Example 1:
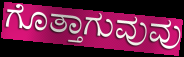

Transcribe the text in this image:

ಗೊತ್ತಾಗುವುವು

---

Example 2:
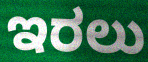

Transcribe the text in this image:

ಇರಲು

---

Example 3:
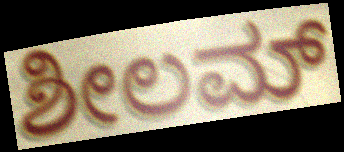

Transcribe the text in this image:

ಶೀಲಮ್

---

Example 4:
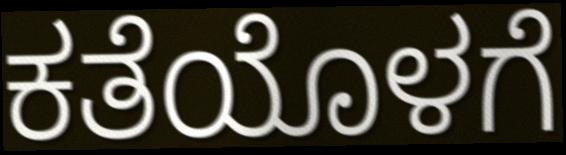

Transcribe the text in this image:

ಕತೆಯೊಳಗೆ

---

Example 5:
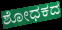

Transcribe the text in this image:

ಶೋಧಕದ